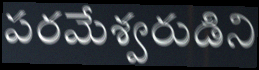
పరమేశ్వరుడిని